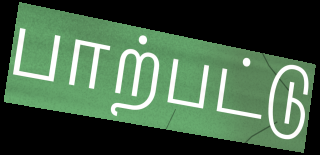
பாற்பட்டு